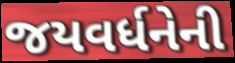
જયવર્ધનેની